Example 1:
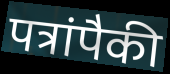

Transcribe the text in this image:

पत्रांपैकी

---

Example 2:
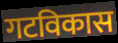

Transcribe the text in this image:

गटविकास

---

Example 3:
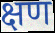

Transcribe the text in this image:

क्षण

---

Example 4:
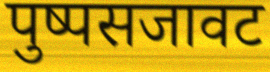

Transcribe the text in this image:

पुष्पसजावट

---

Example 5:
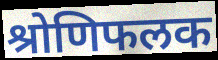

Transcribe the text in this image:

श्रोणिफलक